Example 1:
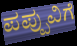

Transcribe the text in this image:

ಪಪ್ಪುವಿಗೆ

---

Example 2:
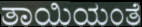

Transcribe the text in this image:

ತಾಯಿಯಂತೆ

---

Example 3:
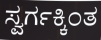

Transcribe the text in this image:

ಸ್ವರ್ಗಕ್ಕಿಂತ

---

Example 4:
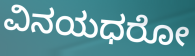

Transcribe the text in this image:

ವಿನಯಧರೋ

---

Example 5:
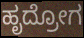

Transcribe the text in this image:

ಹೃದ್ರೋಗ